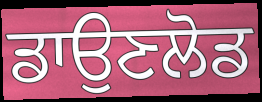
ਡਾਉਣਲੋਡ